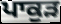
ਪਾਕੁੜ